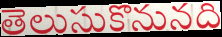
తెలుసుకొనునది